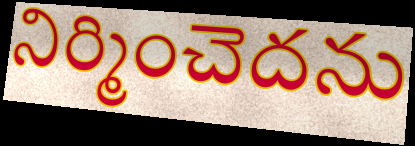
నిర్మించెదను